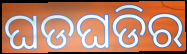
ଘଡଘଡିର